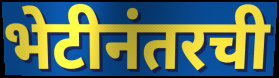
भेटीनंतरची